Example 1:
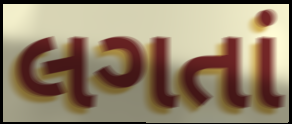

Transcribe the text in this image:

લગતાં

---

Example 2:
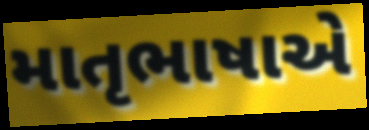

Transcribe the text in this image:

માતૃભાષાએ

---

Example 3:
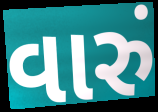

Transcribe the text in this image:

વારું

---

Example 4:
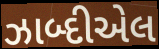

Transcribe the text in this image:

ઝાબ્દીએલ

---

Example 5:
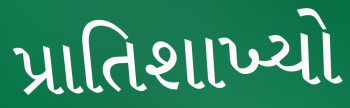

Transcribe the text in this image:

પ્રાતિશાખ્યો